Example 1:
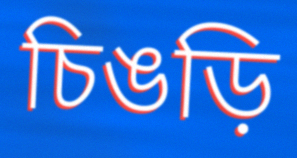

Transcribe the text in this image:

চিঙড়ি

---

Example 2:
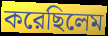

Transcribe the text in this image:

করেছিলেম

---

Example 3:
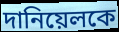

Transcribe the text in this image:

দানিয়েলকে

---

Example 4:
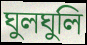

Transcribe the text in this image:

ঘুলঘুলি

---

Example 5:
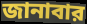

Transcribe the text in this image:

জানাবার